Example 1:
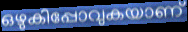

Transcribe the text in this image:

ഒഴുകിപ്പോവുകയാണ്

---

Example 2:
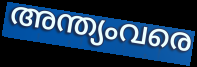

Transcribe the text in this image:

അന്ത്യംവരെ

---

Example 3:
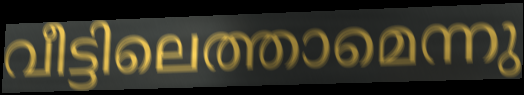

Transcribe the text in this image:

വീട്ടിലെത്താമെന്നു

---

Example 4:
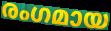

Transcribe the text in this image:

രംഗമായ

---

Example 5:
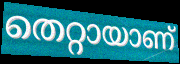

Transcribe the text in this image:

തെറ്റായാണ്